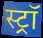
स्ट्रॉ